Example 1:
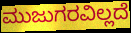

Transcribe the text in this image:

ಮುಜುಗರವಿಲ್ಲದೆ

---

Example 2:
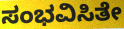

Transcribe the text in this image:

ಸಂಭವಿಸಿತೇ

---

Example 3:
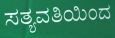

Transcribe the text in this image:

ಸತ್ಯವತಿಯಿಂದ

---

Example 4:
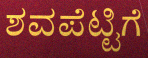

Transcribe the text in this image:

ಶವಪೆಟ್ಟಿಗೆ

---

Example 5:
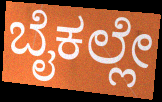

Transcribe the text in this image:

ಬೈಕಲ್ಲೇ